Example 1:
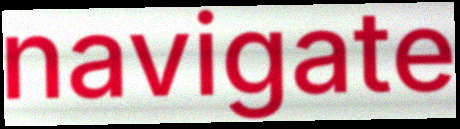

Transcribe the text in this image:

navigate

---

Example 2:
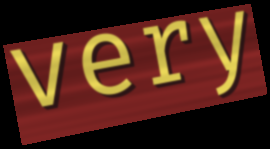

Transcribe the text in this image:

very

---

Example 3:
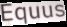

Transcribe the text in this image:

Equus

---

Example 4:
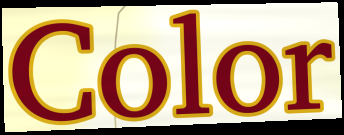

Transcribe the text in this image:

Color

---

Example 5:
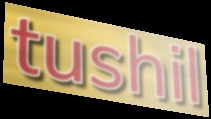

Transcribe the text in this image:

tushil